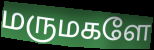
மருமகளே